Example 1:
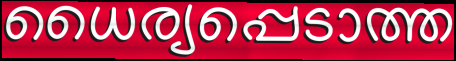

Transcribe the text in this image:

ധൈര്യപ്പെടാത്ത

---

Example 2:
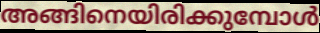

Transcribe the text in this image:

അങ്ങിനെയിരിക്കുമ്പോൾ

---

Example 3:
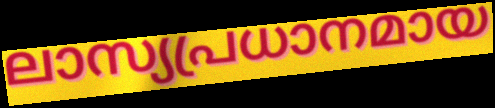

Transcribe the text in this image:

ലാസ്യപ്രധാനമായ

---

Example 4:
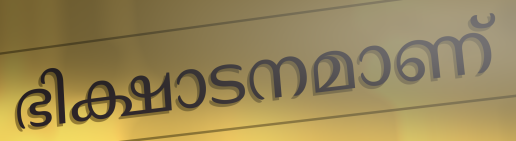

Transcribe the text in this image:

ഭിക്ഷാടനമാണ്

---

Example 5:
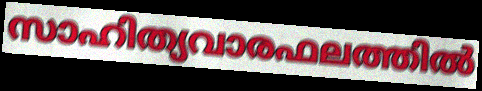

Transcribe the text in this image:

സാഹിത്യവാരഫലത്തിൽ